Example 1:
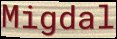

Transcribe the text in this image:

Migdal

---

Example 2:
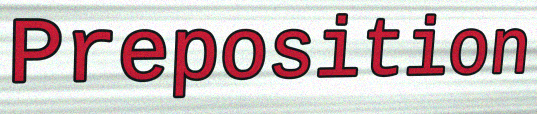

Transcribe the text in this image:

Preposition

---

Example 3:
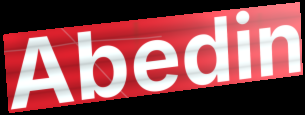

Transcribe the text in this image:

Abedin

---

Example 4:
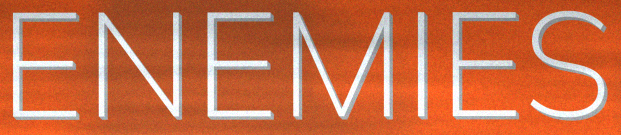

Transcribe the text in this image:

ENEMIES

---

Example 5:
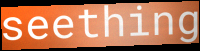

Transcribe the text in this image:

seething